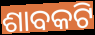
ଶାବକଟି